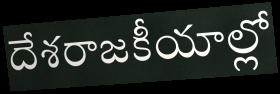
దేశరాజకీయాల్లో